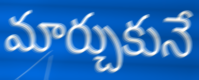
మార్చుకునే